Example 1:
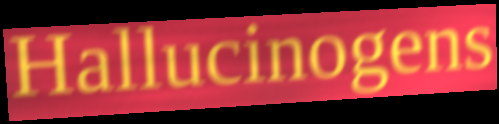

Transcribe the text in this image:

Hallucinogens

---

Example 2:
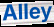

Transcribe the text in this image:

Alley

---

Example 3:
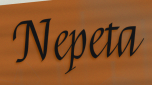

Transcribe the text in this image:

Nepeta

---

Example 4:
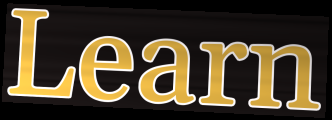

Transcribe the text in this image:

Learn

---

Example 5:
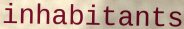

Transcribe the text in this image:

inhabitants